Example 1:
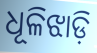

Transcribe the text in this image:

ଧୂଳିଝାଡ଼ି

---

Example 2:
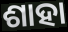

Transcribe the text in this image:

ଶାହା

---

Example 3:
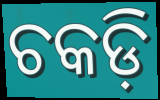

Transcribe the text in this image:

ଚକଡ଼ି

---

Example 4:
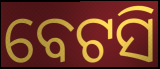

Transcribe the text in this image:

ବେଟସି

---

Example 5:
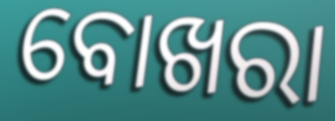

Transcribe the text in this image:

ବୋଖରା